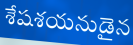
శేషశయనుడైన